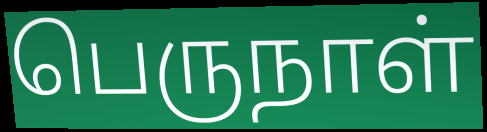
பெருநாள்